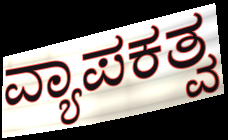
ವ್ಯಾಪಕತ್ವ